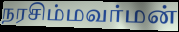
நரசிம்மவர்மன்